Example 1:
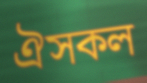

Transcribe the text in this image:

ঐসকল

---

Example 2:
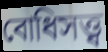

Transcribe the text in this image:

বোধিসত্ত্ব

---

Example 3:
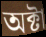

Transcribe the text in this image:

অক্টা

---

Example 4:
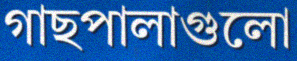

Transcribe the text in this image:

গাছপালাগুলো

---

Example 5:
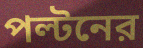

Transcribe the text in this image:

পল্টনের